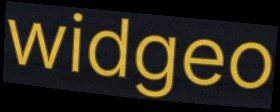
widgeo